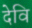
देवि